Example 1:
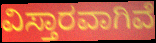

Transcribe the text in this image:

ವಿಸ್ತಾರವಾಗಿವೆ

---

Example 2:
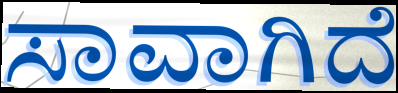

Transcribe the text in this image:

ಸಾವಾಗಿದೆ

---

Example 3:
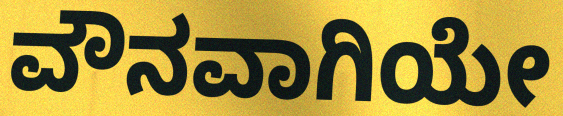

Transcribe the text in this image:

ವೌನವಾಗಿಯೇ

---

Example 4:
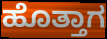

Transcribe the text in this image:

ಹೊತ್ತಾಗ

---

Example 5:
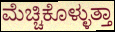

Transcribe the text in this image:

ಮೆಚ್ಚಿಕೊಳ್ಳುತ್ತಾ